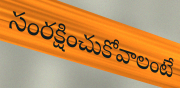
సంరక్షించుకోవాలంటే